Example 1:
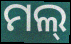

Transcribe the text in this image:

ମଲ୍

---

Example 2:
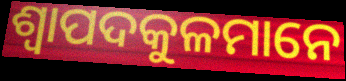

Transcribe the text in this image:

ଶ୍ୱାପଦକୁଳମାନେ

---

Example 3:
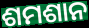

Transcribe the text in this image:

ଶମଶାନ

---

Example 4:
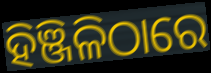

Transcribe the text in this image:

ହିଞ୍ଜିଳିଠାରେ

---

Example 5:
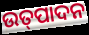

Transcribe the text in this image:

ଉତ୍‍ପାଦନ